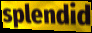
splendid